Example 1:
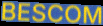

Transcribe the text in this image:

BESCOM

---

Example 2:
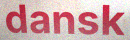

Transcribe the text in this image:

dansk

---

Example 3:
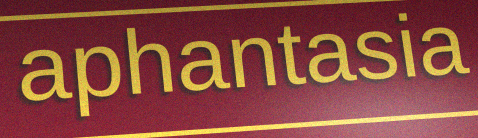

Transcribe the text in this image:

aphantasia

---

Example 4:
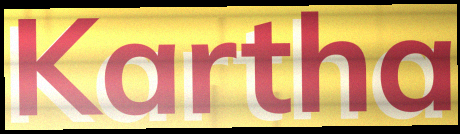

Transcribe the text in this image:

Kartha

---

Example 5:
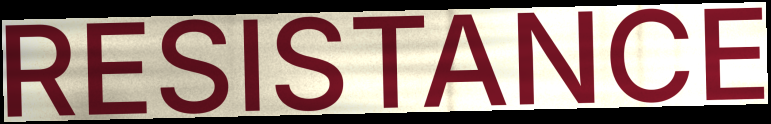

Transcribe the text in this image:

RESISTANCE